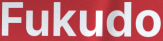
Fukudo